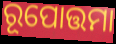
ରୂପୋତ୍ତମା